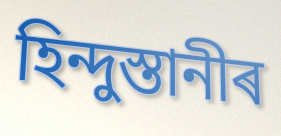
হিন্দুস্তানীৰ